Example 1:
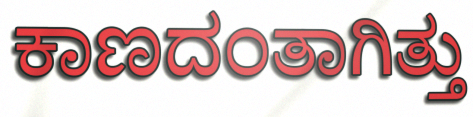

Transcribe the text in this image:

ಕಾಣದಂತಾಗಿತ್ತು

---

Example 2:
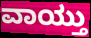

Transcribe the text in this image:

ವಾಯ್ತು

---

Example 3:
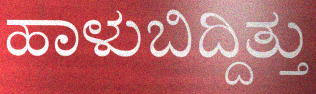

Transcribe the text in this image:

ಹಾಳುಬಿದ್ದಿತ್ತು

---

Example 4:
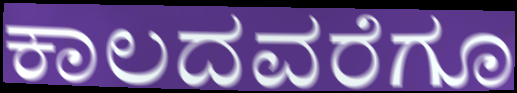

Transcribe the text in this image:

ಕಾಲದವರೆಗೂ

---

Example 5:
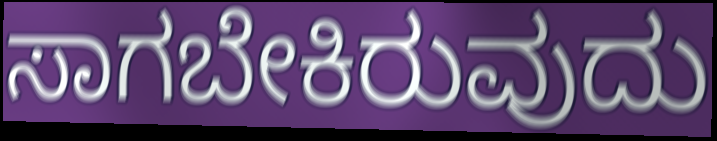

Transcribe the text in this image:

ಸಾಗಬೇಕಿರುವುದು